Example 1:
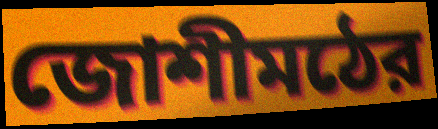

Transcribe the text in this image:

জোশীমঠের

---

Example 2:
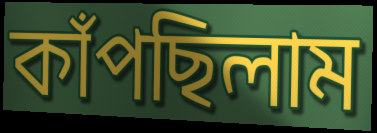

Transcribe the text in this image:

কাঁপছিলাম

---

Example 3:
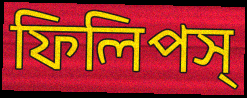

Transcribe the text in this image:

ফিলিপস্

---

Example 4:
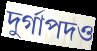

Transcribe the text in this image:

দুর্গাপদও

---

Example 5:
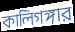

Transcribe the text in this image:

কালিগঙ্গার